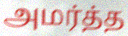
அமர்த்த